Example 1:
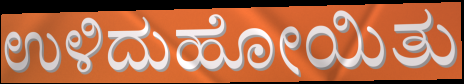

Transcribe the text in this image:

ಉಳಿದುಹೋಯಿತು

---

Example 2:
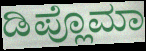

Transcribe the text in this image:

ಡಿಪ್ಲೊಮಾ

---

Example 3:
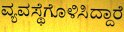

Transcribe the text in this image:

ವ್ಯವಸ್ಥೆಗೊಳಿಸಿದ್ದಾರೆ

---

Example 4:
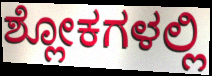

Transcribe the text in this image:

ಶ್ಲೋಕಗಳಲ್ಲಿ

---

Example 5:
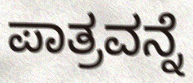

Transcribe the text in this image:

ಪಾತ್ರವನ್ನೆ